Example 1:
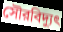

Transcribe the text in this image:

সৌরবিদ্যুৎ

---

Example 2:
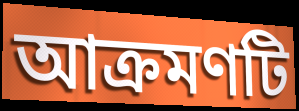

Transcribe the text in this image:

আক্রমণটি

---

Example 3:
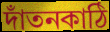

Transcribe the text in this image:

দাঁতনকাঠি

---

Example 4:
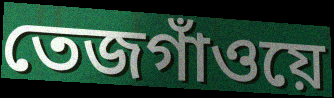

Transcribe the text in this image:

তেজগাঁওয়ে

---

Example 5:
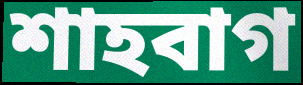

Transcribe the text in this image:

শাহবাগ